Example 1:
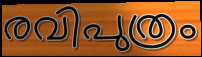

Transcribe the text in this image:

രവിപുത്രം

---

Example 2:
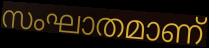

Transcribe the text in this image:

സംഘാതമാണ്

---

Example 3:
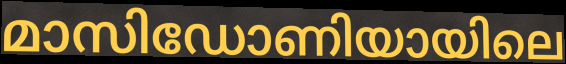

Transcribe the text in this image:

മാസിഡോണിയായിലെ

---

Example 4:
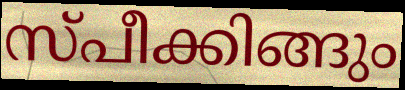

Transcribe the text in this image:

സ്പീക്കിങ്ങും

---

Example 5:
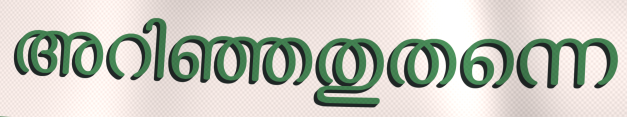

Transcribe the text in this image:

അറിഞ്ഞതുതന്നെ